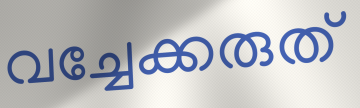
വച്ചേക്കരുത്